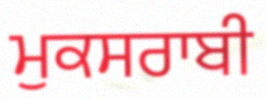
ਮੁਕਸਰਾਬੀ